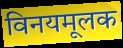
विनयमूलक